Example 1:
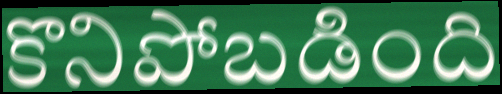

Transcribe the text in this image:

కొనిపోబడింది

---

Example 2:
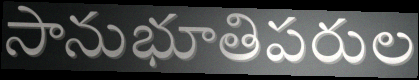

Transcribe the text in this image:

సానుభూతిపరుల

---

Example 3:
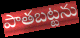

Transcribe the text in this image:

పాతబట్టను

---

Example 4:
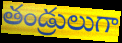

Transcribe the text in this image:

తండ్రులుగా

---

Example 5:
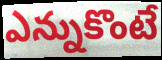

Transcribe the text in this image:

ఎన్నుకొంటే